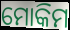
ମୋକିମ